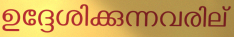
ഉദ്ദേശിക്കുന്നവരില്